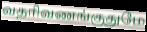
வதரிவணங்குதுமே